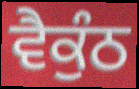
ਵੈਕੁੰਠ